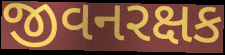
જીવનરક્ષક